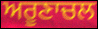
ਅਰੂਣਾਚਲ